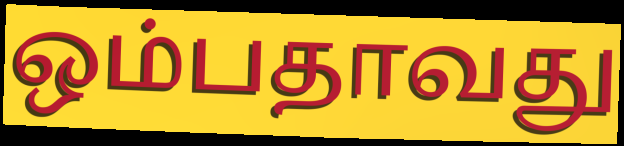
ஒம்பதாவது